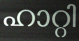
ഹാറ്റി